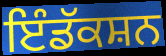
ਇੰਡੱਕਸ਼ਨ